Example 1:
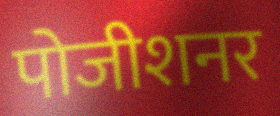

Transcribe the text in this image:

पोजीशनर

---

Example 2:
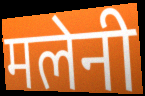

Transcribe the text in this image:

मलेनी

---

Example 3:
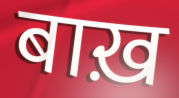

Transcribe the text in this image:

बाख़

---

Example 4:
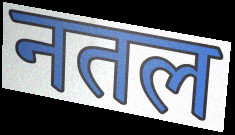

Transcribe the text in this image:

नतल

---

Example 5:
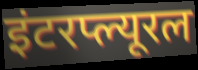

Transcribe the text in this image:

इंटरप्ल्यूरल